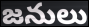
జనులు